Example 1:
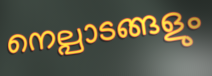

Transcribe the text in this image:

നെല്പാടങ്ങളും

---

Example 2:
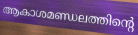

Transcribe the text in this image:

ആകാശമണ്ഡലത്തിന്റെ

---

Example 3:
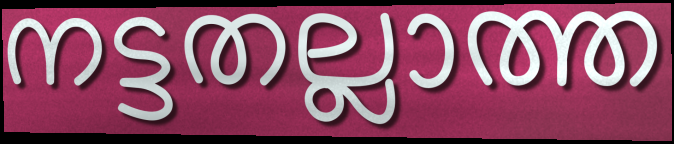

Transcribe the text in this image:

നട്ടതല്ലാത്ത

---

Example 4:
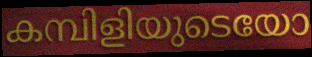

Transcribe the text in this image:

കമ്പിളിയുടെയോ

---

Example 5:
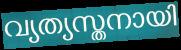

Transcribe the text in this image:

വ്യത്യസ്തനായി